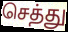
செத்து